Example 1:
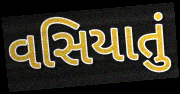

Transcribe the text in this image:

વસિયાતું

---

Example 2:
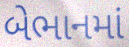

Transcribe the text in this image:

બેભાનમાં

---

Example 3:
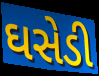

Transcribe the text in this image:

ઘસેડી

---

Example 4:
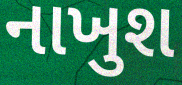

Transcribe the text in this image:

નાખુશ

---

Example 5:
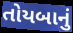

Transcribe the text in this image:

તોયબાનું